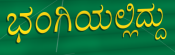
ಭಂಗಿಯಲ್ಲಿದ್ದು